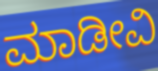
ಮಾಡೀವಿ